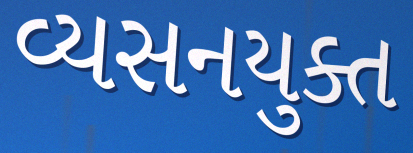
વ્યસનયુક્ત